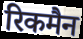
रिकमैन